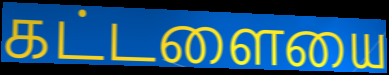
கட்டளையை